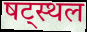
षट्स्थल